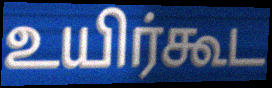
உயிர்கூட